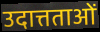
उदात्तताओं